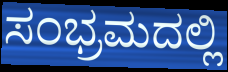
ಸಂಭ್ರಮದಲ್ಲಿ